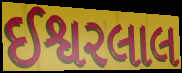
ઈશ્વરલાલ